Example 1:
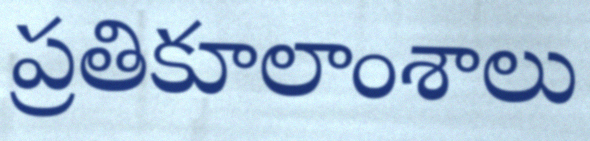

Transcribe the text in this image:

ప్రతికూలాంశాలు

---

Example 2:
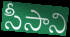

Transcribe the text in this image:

సీసాని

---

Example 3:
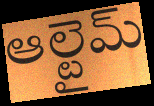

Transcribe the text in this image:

ఆల్టైమ్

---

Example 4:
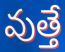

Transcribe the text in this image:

వుత్తే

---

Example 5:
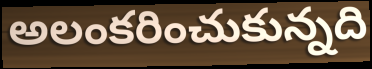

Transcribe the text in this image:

అలంకరించుకున్నది